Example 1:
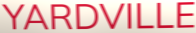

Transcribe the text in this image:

YARDVILLE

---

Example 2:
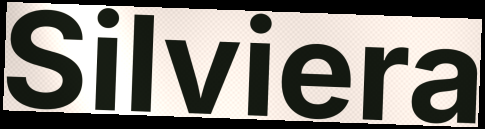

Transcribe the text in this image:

Silviera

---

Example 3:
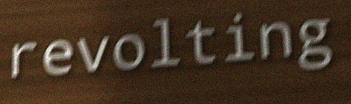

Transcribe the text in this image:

revolting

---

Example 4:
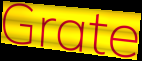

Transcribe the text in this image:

Grate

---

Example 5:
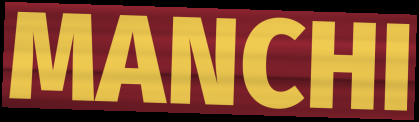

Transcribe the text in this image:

MANCHI